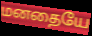
மனதையே